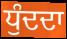
ਧੁੰਦਦਾ